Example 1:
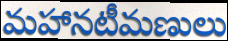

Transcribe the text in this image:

మహానటీమణులు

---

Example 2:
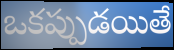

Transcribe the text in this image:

ఒకప్పుడయితే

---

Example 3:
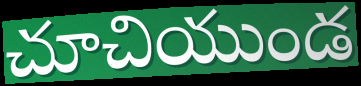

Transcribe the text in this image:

చూచియుండ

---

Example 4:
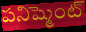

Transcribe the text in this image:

పనిష్మెంట్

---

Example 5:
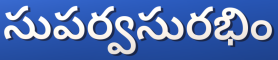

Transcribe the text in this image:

సుపర్వసురభిం